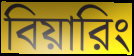
বিয়ারিং